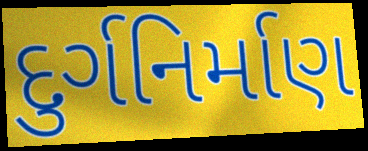
દુર્ગનિર્માણ